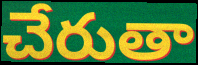
చేరుతా